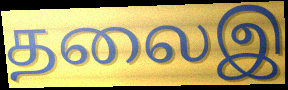
தலைஇ